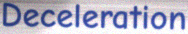
Deceleration